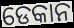
ଡେକାନ